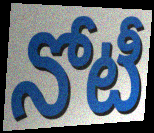
నోటీ